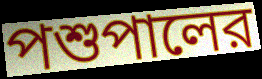
পশুপালের